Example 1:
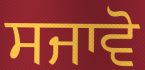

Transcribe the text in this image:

ਸਜਾਵੋ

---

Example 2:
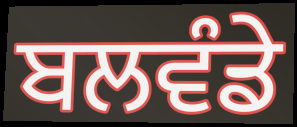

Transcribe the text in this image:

ਬਲਵੰਡੇ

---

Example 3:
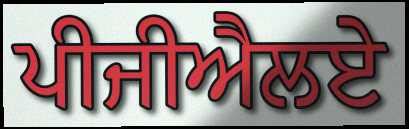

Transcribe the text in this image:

ਪੀਜੀਐਲਏ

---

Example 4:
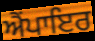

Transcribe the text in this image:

ਐਂਪਾਇਰ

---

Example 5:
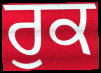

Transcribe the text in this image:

ਰੁਕ